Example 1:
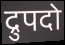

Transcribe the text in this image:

द्रुपदो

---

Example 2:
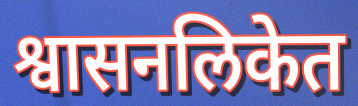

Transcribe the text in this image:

श्वासनलिकेत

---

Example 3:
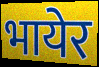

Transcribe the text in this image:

भायेर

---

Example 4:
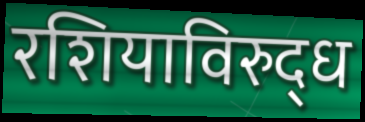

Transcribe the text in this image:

रशियाविरुद्ध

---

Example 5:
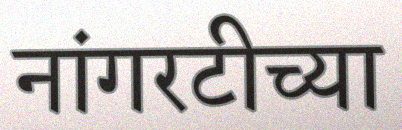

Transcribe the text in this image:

नांगरटीच्या